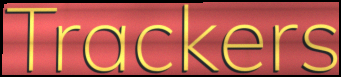
Trackers